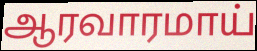
ஆரவாரமாய்